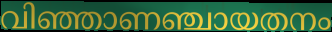
വിഞ്ഞാണഞ്ചായതനം